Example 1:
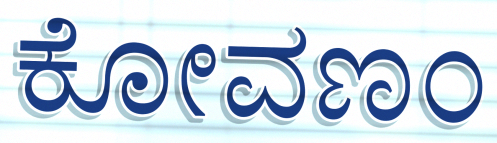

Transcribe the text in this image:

ಕೋವಣಂ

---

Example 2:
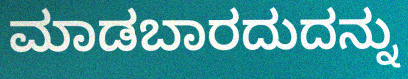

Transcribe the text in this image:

ಮಾಡಬಾರದುದನ್ನು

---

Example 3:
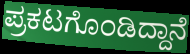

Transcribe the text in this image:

ಪ್ರಕಟಗೊಂಡಿದ್ದಾನೆ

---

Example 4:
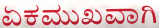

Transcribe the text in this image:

ಏಕಮುಖವಾಗಿ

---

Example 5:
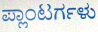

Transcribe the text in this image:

ಪ್ಲಾಂಟರ್ಗಳು